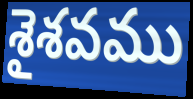
శైశవము